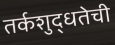
तर्कशुद्धतेची